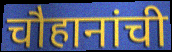
चौहानांची